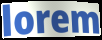
lorem